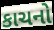
કાચનો